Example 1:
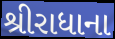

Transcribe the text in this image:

શ્રીરાધાના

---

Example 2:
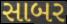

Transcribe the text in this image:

સાબર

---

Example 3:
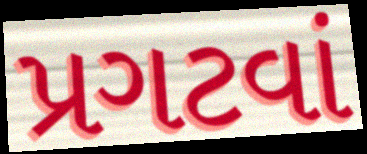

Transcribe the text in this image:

પ્રગટવાં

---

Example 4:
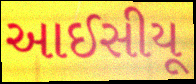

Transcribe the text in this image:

આઈસીયૂ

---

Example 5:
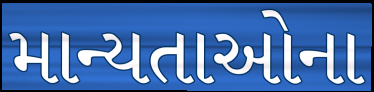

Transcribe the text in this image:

માન્યતાઓના